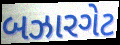
બઝારગેટ